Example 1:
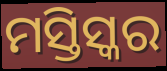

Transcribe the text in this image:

ମସ୍ତିସ୍କର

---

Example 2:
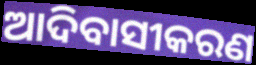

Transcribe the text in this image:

ଆଦିବାସୀକରଣ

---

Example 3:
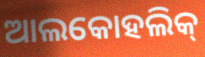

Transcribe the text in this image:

ଆଲକୋହଲିକ୍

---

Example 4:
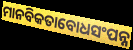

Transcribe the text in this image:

ମାନବିକତାବୋଧସଂପନ୍ନ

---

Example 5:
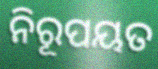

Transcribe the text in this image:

ନିରୂପୟତ